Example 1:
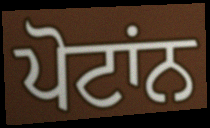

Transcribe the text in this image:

ਪੋਟਾਂਨ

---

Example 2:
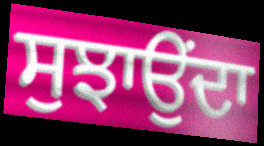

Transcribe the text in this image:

ਸੁਝਾਉਂਦਾ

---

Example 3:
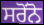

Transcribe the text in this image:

ਸਰੋਂਨੋ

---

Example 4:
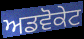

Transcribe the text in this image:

ਅਡਵੋਕੇਟ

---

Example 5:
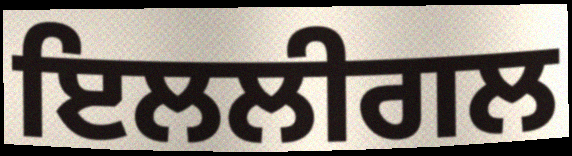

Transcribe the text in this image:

ਇਲਲੀਗਲ